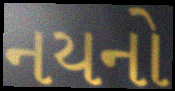
નયનો